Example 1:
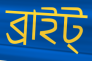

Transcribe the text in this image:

ব্রাইট্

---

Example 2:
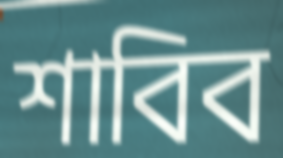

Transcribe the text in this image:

শাবিব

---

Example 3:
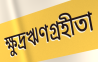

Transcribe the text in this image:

ক্ষুদ্রঋণগ্রহীতা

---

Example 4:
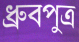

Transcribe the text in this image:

ধ্রুবপুত্র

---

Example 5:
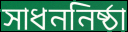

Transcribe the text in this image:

সাধননিষ্ঠা